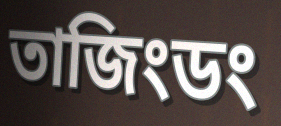
তাজিংডং